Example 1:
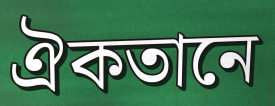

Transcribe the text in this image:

ঐকতানে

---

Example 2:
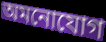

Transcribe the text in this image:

অমনোযোগ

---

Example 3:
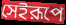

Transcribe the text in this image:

সেইরূপে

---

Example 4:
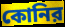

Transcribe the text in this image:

কোনির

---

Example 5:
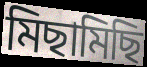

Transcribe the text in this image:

মিছামিছি